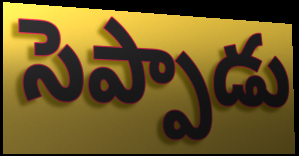
సెప్పాడు